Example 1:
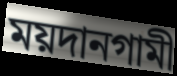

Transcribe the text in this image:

ময়দানগামী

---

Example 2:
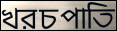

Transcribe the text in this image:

খরচপাতি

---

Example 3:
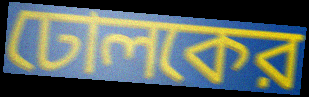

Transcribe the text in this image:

ঢোলকের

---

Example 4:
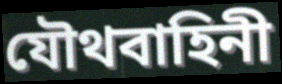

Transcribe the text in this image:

যৌথবাহিনী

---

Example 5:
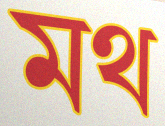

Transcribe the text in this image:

মথ